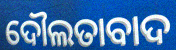
ଦୌଲତାବାଦ